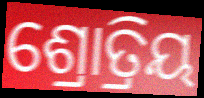
ଶ୍ରୋତ୍ରିୟ